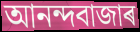
আনন্দবাজাৰ